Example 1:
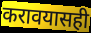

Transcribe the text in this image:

करावयासही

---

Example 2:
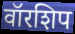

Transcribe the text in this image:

वॉरशिप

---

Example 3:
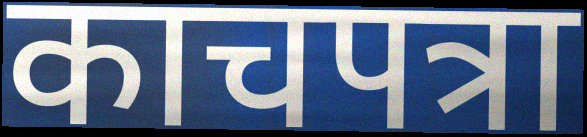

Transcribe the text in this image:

काचपत्रा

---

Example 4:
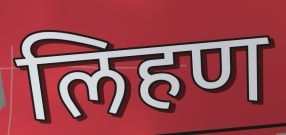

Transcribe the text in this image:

लिहण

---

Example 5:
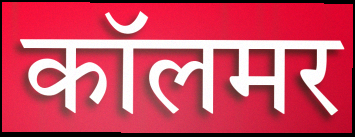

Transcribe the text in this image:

कॉलमर